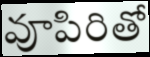
వూపిరితో